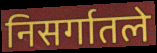
निसर्गातले